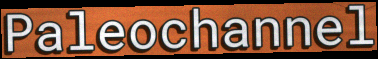
Paleochannel